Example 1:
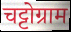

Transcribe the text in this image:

चट्टोग्राम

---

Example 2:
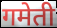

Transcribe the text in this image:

गमेती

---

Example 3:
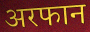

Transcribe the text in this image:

अरफान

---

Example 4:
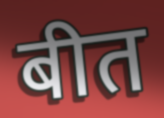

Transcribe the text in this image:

बीत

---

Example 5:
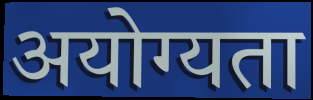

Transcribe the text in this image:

अयोग्यता